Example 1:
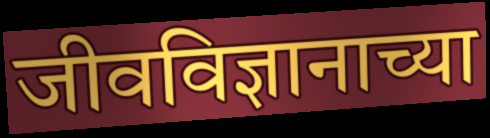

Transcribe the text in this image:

जीवविज्ञानाच्या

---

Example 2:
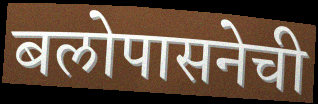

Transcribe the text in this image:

बलोपासनेची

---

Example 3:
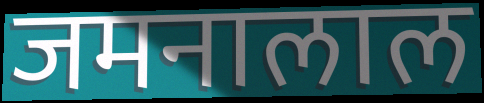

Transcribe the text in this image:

जमनालाल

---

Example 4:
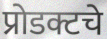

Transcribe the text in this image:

प्रोडक्टचे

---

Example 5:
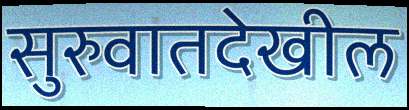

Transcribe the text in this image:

सुरुवातदेखील